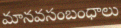
మానవసంబంధాలు